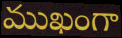
ముఖంగా